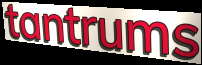
tantrums